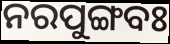
ନରପୁଙ୍ଗବଃ